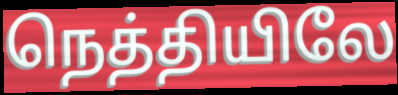
நெத்தியிலே